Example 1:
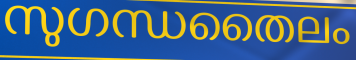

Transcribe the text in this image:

സുഗന്ധതൈലം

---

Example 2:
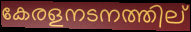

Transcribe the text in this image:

കേരളനടനത്തില്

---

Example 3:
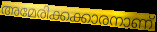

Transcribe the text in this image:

അമേരിക്കക്കാരനാണ്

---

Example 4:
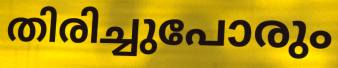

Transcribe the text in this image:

തിരിച്ചുപോരും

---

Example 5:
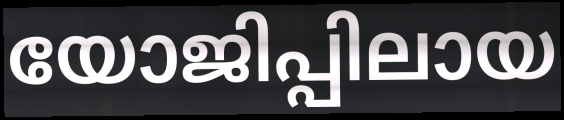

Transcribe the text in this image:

യോജിപ്പിലായ